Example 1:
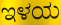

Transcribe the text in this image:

ಇಳಯ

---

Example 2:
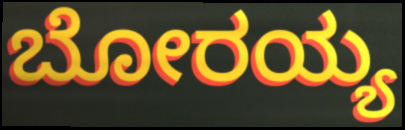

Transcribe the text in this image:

ಬೋರಯ್ಯ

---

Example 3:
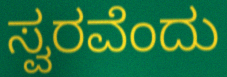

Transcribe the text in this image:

ಸ್ವರವೆಂದು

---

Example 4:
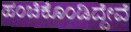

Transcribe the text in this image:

ಹಂಚಿಕೊಂಡಿದ್ದೇವೆ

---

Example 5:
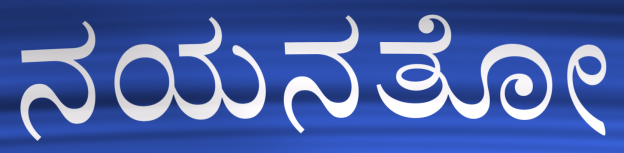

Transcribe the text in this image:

ನಯನತೋ